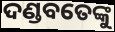
ଦଣ୍ଡବତେଙ୍କୁ